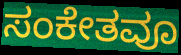
ಸಂಕೇತವೂ